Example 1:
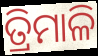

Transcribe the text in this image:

ତ୍ରିମାଳି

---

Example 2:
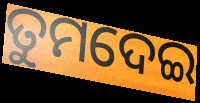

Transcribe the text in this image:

ତୁମଦେଇ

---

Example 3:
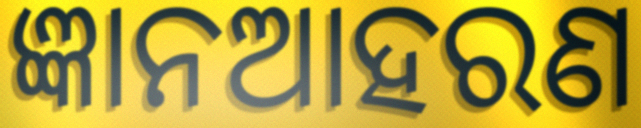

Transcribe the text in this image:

ଜ୍ଞାନଆହରଣ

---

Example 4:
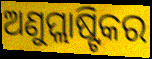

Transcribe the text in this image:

ଅଣୁପ୍ଲାଷ୍ଟିକର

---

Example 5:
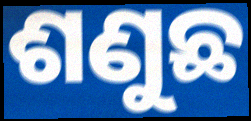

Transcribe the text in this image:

ଶଣୁଛ